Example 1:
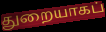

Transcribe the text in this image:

துறையாகப்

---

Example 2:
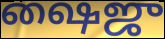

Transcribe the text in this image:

ஷைஜு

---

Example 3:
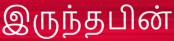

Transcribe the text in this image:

இருந்தபின்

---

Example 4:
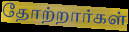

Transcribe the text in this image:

தோற்றார்கள்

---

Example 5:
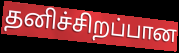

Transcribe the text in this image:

தனிச்சிறப்பான